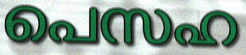
പെസഹ